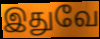
இதுவே